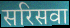
सरिसवा